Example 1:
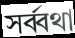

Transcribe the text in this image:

সৰ্ব্বথা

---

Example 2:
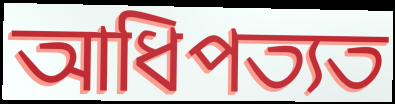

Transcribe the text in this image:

আধিপত্যত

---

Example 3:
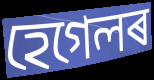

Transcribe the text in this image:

হেগেলৰ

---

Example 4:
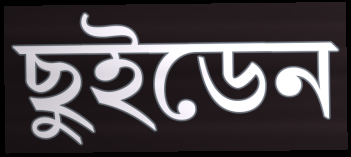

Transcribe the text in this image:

ছুইডেন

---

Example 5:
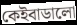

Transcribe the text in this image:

কেইবাডালো